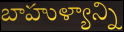
బాహుళ్యాన్ని